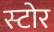
स्‍टोर